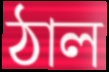
ঠাল